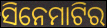
ସିନେମାଟିର